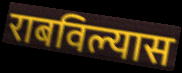
राबविल्यास